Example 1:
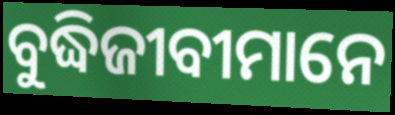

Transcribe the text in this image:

ବୁଦ୍ଧିଜୀବୀମାନେ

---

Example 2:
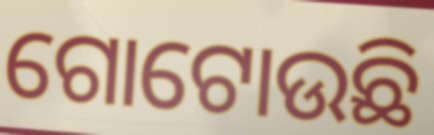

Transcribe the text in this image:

ଗୋଟୋଉଛି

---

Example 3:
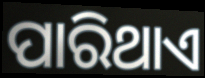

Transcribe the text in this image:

ପାରିଥାଏ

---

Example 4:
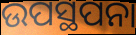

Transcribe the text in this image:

ଉପସ୍ଥପନା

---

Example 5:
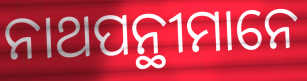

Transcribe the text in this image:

ନାଥପନ୍ଥୀମାନେ